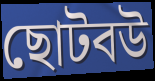
ছোটবউ